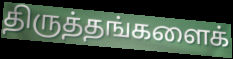
திருத்தங்களைக்